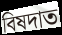
বিষদাত